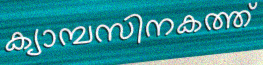
ക്യാമ്പസിനകത്ത്